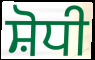
ਸ਼ੋਧੀ